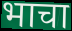
भाचा